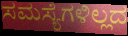
ಸಮಸ್ಯೆಗಳಿಲ್ಲದ